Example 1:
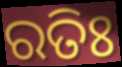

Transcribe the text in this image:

ରତିଃ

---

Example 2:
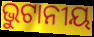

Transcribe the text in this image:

ଭୁଟାନୀୟ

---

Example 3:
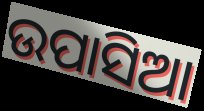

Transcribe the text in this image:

ଉପାସିଆ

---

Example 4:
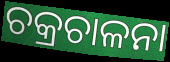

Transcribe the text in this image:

ଚକ୍ରଚାଳନା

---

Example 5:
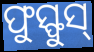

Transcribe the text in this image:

ଫୁସ୍ଫୁସ୍